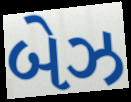
બેઝ